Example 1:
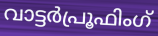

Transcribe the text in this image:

വാട്ടർപ്രൂഫിംഗ്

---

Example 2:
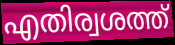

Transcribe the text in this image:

എതിര്വശത്ത്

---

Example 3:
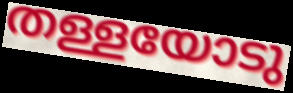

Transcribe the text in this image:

തള്ളയോടു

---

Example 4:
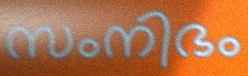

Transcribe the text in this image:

സംനിഭം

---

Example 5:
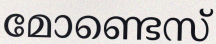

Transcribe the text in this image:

മോണ്ടെസ്